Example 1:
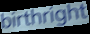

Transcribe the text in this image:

birthright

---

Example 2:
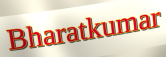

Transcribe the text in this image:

Bharatkumar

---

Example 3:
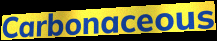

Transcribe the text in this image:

Carbonaceous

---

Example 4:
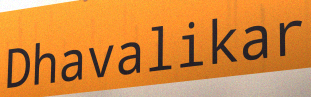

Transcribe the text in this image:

Dhavalikar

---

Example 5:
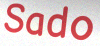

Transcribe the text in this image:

Sado